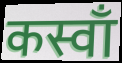
कस्वाँ